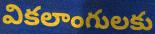
వికలాంగులకు